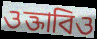
ওক্তাবিও